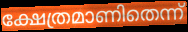
ക്ഷേത്രമാണിതെന്ന്